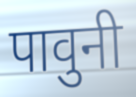
पावुनी